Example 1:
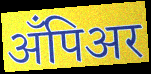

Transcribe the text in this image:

अँपिअर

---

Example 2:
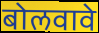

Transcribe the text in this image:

बोलवावे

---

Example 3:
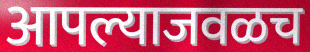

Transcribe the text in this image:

आपल्याजवळच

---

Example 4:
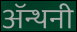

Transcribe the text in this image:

ॲन्थनी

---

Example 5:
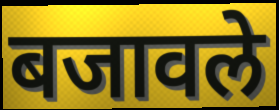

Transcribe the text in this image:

बजावले